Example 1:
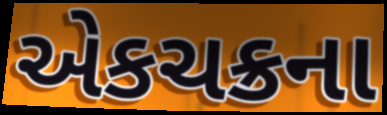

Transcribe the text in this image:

એકચક્રના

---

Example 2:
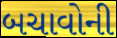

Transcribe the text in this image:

બચાવોની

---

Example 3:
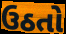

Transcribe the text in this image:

ઉઠતો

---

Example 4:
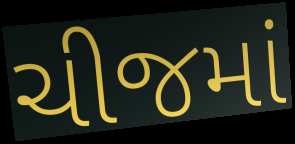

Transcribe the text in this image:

ચીજમાં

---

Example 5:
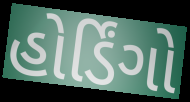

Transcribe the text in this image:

હોર્ડિંગો